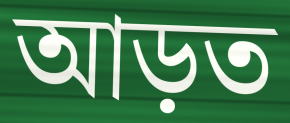
আড়ত